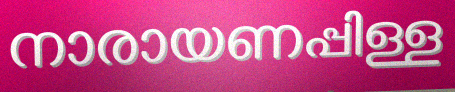
നാരായണപ്പിള്ള